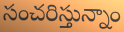
సంచరిస్తున్నాం